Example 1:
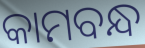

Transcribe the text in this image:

କାମବନ୍ଧ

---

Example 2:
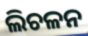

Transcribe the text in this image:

ଲିଚଳନ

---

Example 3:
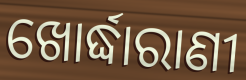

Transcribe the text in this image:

ଖୋର୍ଦ୍ଧାରାଣୀ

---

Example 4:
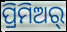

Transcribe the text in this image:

ପ୍ରିମିଅର୍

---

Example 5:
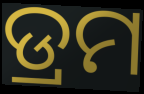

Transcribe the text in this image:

ଡ୍ରମ